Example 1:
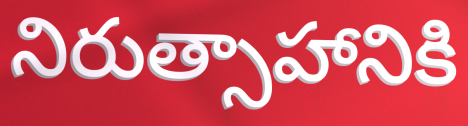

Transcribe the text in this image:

నిరుత్సాహానికి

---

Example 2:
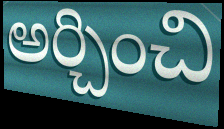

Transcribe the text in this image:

అర్చించి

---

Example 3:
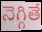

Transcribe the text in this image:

నెగ్గితే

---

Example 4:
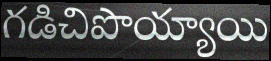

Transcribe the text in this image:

గడిచిపొయ్యాయి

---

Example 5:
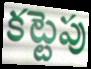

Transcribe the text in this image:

కట్టెపు